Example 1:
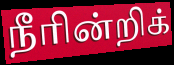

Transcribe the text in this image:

நீரின்றிக்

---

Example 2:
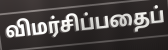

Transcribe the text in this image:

விமர்சிப்பதைப்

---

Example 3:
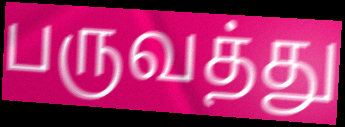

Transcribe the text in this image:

பருவத்து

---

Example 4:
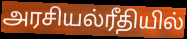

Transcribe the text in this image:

அரசியல்ரீதியில்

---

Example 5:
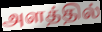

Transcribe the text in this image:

அளத்தில்